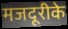
मजदूरीके